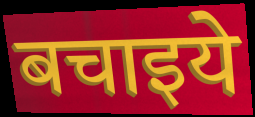
बचाइये